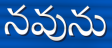
నవును